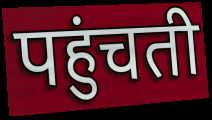
पहुंचती